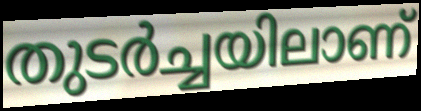
തുടർച്ചയിലാണ്